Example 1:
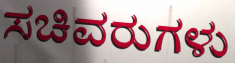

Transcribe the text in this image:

ಸಚಿವರುಗಳು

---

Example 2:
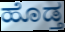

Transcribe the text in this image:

ಹೊಡ್ತ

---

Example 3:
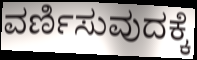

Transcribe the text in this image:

ವರ್ಣಿಸುವುದಕ್ಕೆ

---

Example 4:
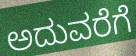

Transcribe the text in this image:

ಅದುವರೆಗೆ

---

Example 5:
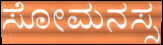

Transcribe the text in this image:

ಸೋಮನಸ್ಸ